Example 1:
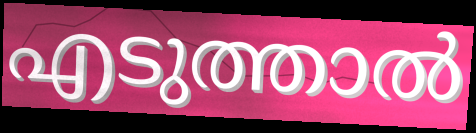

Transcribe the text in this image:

എടുത്താൽ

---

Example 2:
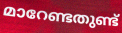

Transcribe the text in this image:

മാറേണ്ടതുണ്ട്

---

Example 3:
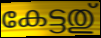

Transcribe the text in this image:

കേട്ടതു്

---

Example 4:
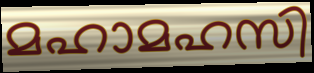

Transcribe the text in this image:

മഹാമഹസി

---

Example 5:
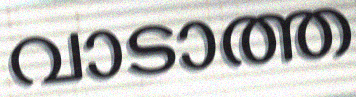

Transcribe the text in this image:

വാടാത്ത